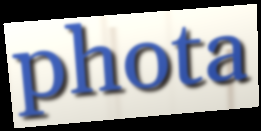
phota